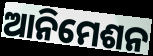
ଆନିମେଶନ